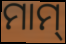
ମାମ୍